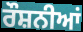
ਰੌਸ਼ਨੀਆਂ